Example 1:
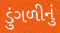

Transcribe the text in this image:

ડુંગળીનું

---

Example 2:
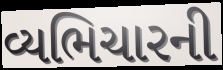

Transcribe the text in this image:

વ્યભિચારની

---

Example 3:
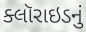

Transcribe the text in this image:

ક્લૉરાઇડનું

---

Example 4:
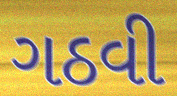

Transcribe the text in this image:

ગઠવી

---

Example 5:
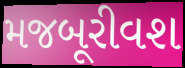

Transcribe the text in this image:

મજબૂરીવશ